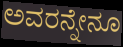
ಅವರನ್ನೇನೂ